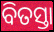
ବିତସ୍ତା